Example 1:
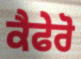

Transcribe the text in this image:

ਕੈਫੇਰੋ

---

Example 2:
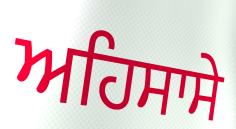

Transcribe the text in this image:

ਅਹਿਸਾਸੇ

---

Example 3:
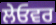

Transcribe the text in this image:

ਲੇਓਵਰ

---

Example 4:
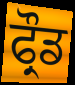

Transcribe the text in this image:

ਫ੍ਰੌਡ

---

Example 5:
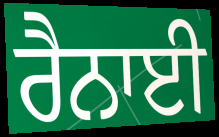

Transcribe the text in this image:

ਰੈਨਾਈ